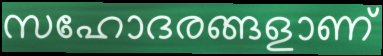
സഹോദരങ്ങളാണ്